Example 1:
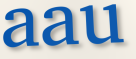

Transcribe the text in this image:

aau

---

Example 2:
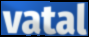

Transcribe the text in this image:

vatal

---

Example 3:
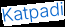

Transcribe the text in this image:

Katpadi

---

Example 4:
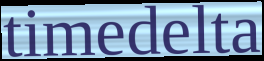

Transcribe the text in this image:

timedelta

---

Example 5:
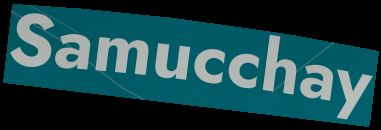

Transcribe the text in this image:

Samucchay